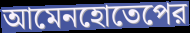
আমেনহোতেপের